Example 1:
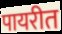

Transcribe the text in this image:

पायरीत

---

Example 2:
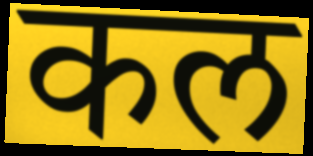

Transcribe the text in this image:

कल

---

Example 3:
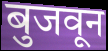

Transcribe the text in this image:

बुजवून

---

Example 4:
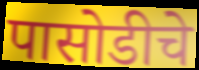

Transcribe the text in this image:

पासोडीचे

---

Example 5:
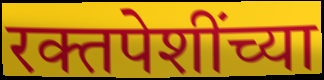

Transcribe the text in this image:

रक्तपेशींच्या